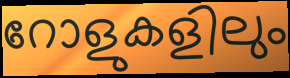
റോളുകളിലും